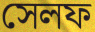
সেলফ